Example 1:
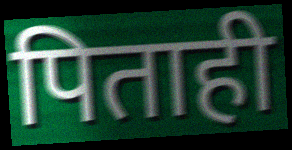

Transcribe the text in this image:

पिताही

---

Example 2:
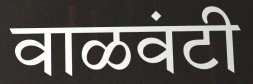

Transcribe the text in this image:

वाळवंटी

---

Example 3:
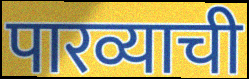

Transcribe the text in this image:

पारव्याची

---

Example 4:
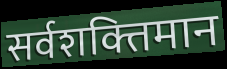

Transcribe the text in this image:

सर्वशक्तिमान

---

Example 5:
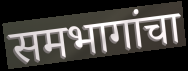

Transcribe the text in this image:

समभागांचा